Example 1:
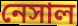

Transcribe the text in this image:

নেসাল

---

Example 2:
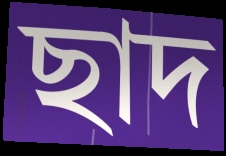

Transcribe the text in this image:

ছাদ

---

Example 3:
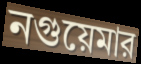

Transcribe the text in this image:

নগুয়েমার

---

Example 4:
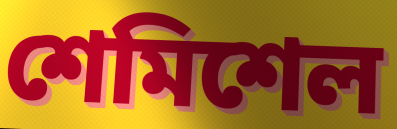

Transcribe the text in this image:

শেমিশেল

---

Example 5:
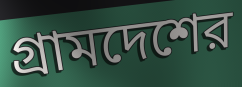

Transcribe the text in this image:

গ্রামদেশের